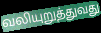
வலியுறுத்துவது